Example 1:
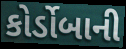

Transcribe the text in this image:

કોર્ડોબાની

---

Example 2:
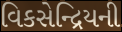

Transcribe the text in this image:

વિકસેન્દ્રિયની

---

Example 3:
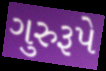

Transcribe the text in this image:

ગુરુરૂપે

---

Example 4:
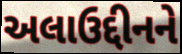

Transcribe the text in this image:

અલાઉદ્દીનને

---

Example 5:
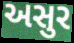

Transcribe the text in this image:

અસુર